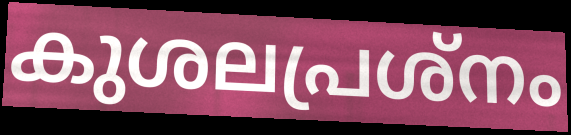
കുശലപ്രശ്നം